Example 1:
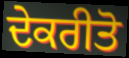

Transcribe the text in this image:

ਦੇਕਰੀਤੋ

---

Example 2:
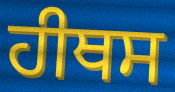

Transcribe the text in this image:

ਹੀਥਸ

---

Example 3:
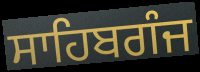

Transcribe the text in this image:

ਸਾਹਿਬਗੰਜ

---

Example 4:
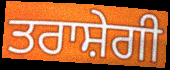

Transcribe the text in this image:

ਤਰਾਸ਼ੇਗੀ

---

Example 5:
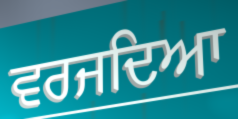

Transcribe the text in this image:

ਵਰਜਦਿਆ